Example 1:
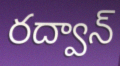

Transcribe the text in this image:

రద్వాన్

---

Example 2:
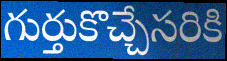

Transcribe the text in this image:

గుర్తుకొచ్చేసరికి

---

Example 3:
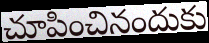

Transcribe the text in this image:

చూపించినందుకు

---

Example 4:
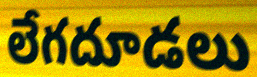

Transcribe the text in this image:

లేగదూడలు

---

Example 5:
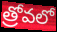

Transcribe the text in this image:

త్రోవలో